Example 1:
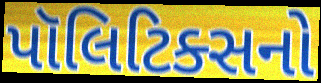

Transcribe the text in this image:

પૉલિટિક્સનો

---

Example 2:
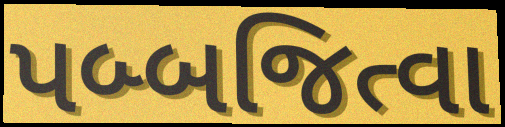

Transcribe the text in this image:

પબ્બજિત્વા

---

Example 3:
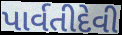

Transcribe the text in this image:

પાર્વતીદેવી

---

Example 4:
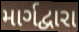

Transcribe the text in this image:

માર્ગદ્વારા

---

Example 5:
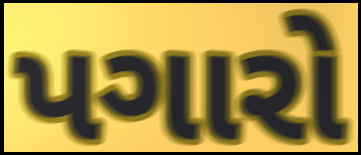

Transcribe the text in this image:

પગારો